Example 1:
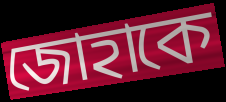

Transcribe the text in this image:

জোহাকে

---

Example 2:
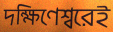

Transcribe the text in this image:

দক্ষিণেশ্বরেই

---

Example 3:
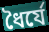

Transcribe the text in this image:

ধৈর্যে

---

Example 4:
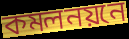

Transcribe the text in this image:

কমলনয়নে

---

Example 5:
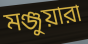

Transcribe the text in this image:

মঞ্জুয়ারা